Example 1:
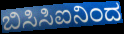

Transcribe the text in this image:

ಬಿಸಿಸಿಐನಿಂದ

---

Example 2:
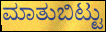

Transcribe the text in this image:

ಮಾತುಬಿಟ್ಟು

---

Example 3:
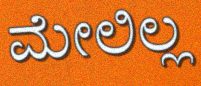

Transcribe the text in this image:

ಮೇಲಿಲ್ಲ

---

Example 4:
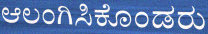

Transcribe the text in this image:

ಆಲಂಗಿಸಿಕೊಂಡರು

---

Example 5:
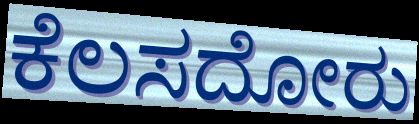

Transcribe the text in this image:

ಕೆಲಸದೋರು